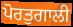
ਪੋਰਤੁਗਾਲੀ